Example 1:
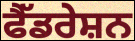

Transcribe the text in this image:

ਫੈੱਡਰੇਸ਼ਨ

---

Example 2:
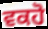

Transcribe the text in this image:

ਵਕਹੋ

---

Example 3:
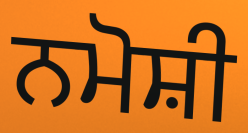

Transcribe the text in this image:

ਨਮੋਸ਼ੀ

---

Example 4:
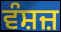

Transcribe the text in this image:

ਵੰਸ਼ਜ਼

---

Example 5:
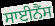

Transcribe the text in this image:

ਸਾਈਨੈਂਸ